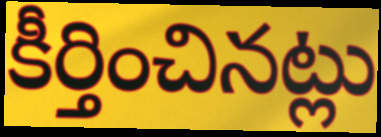
కీర్తించినట్లు